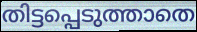
തിട്ടപ്പെടുത്താതെ